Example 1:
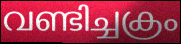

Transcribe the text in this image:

വണ്ടിച്ചക്രം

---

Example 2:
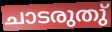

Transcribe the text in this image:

ചാടരുതു്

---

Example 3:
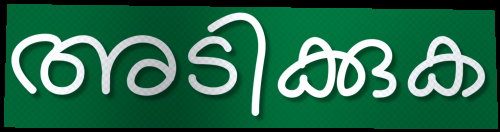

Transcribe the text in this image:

അടിക്കുക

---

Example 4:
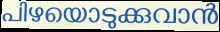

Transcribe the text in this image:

പിഴയൊടുക്കുവാൻ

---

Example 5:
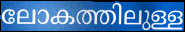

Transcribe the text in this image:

ലോകത്തിലുള്ള